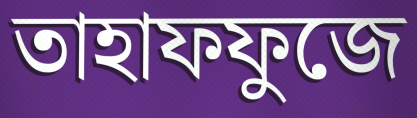
তাহাফফুজে